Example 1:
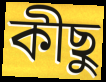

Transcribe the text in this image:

কীছু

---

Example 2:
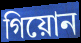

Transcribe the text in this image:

গিয়োন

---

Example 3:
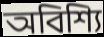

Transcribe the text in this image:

অবিশ্যি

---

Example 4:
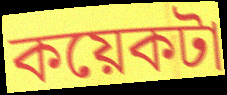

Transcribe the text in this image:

কয়েকটা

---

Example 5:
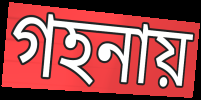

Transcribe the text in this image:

গহনায়